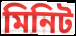
মিনিট